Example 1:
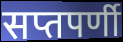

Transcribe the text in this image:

सप्तपर्णी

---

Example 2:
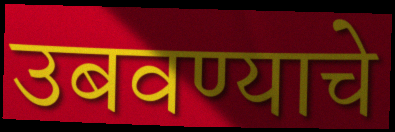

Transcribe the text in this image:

उबवण्याचे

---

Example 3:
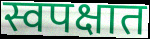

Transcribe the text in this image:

स्वपक्षात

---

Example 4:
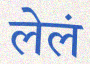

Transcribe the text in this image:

लेलं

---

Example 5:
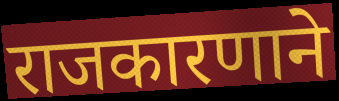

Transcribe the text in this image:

राजकारणाने